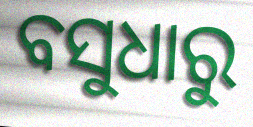
ବସୁଧାରୁ